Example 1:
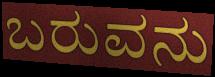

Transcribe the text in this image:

ಬರುವನು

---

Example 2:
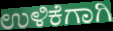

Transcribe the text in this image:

ಉಳಿಕೆಗಾಗಿ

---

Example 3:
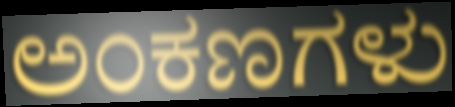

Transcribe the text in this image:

ಅಂಕಣಗಳು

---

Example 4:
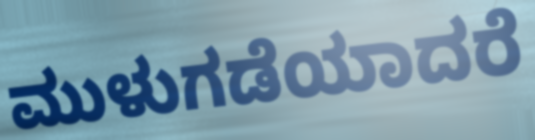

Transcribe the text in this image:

ಮುಳುಗಡೆಯಾದರೆ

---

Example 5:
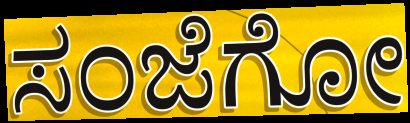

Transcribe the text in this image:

ಸಂಜೆಗೋ